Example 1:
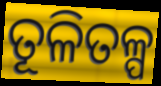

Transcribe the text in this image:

ତୂଳିତଳ୍ପ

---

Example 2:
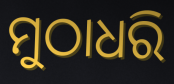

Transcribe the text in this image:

ମୁଠାଧରି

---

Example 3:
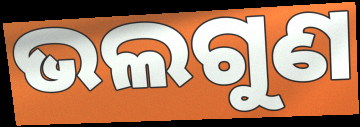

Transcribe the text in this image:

ଭଲଗୁଣ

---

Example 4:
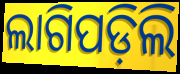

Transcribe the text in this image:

ଲାଗିପଡ଼ିଲି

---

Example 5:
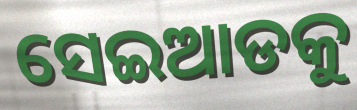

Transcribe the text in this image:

ସେଇଆଡକୁ